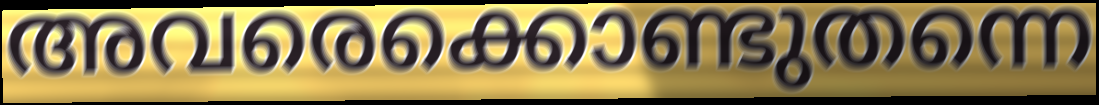
അവരെക്കൊണ്ടുതന്നെ